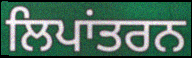
ਲਿਪਾਂਤਰਨ